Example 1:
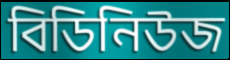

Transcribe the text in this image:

বিডিনিউজ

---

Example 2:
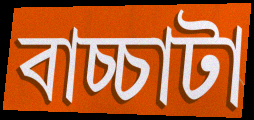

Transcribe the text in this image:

বাচ্চাটা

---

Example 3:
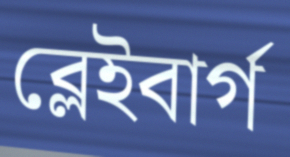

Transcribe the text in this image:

ব্লেইবার্গ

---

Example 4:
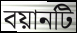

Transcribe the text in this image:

বয়ানটি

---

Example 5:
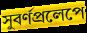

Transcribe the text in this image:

সুবর্ণপ্রলেপে